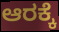
ಆರಕ್ಕೆ